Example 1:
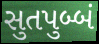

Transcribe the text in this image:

સુતપુબ્બં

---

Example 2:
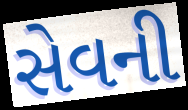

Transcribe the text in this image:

સેવની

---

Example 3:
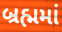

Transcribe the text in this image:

બ્રહ્મમાં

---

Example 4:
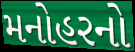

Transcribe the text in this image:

મનોહરનો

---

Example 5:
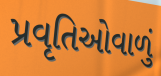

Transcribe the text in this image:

પ્રવૃતિઓવાળું